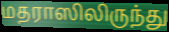
மதராஸிலிருந்து